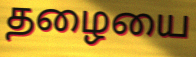
தழையை